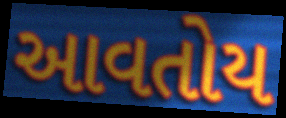
આવતોય